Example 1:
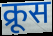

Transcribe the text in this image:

क्रूस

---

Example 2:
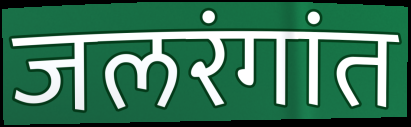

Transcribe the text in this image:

जलरंगांत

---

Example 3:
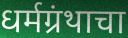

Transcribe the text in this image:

धर्मग्रंथाचा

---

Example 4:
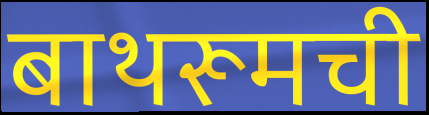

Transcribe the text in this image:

बाथरूमची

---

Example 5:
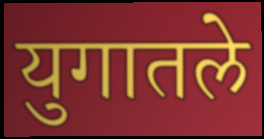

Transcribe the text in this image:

युगातले